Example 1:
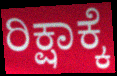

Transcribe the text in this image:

ರಿಕ್ಷಾಕ್ಕೆ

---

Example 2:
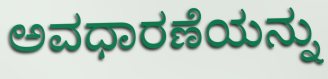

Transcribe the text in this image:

ಅವಧಾರಣೆಯನ್ನು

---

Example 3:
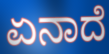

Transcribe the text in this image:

ಏನಾದೆ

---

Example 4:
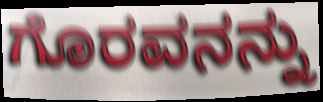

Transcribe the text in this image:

ಗೊರವನನ್ನು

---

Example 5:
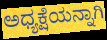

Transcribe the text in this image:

ಅಧ್ಯಕ್ಷೆಯನ್ನಾಗಿ